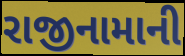
રાજીનામાની